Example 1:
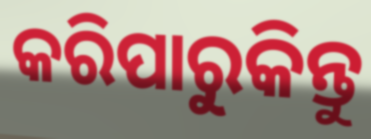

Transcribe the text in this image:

କରିପାରୁକିନ୍ତୁ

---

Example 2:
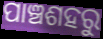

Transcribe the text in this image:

ପାଞ୍ଚଶହରୁ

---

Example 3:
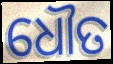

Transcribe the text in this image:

ଧୌତ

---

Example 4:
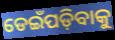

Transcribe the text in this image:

ଡେଇଁପଡ଼ିବାକୁ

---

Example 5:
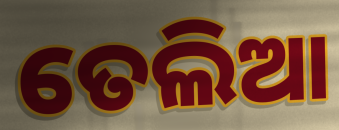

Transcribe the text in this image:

ତେଲିଆ